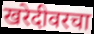
खरेदीवरचा